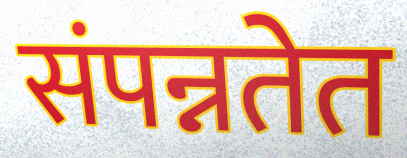
संपन्नतेत